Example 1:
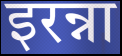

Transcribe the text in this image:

इरन्ना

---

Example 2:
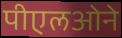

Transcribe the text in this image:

पीएलओने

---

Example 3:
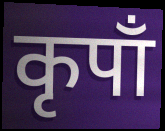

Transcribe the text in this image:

कृपाँ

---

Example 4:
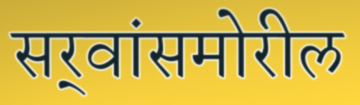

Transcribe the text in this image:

सर्वांसमोरील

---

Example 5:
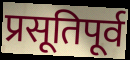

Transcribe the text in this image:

प्रसूतिपूर्व